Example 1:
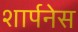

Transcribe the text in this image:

शार्पनेस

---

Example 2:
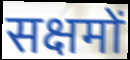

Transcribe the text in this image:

सक्षमों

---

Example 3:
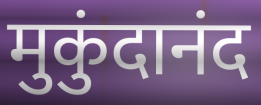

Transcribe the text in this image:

मुकुंदानंद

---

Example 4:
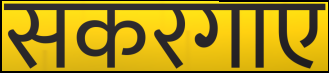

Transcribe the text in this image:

सकरगाए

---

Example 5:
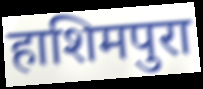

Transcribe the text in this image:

हाशिमपुरा